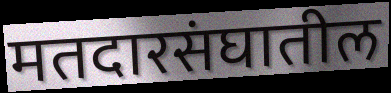
मतदारसंघातील